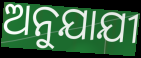
ଅନୁଯାଯୀ